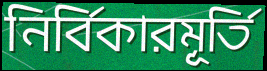
নির্বিকারমূর্তি